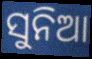
ସୁନିଆ